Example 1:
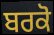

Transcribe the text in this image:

ਬਰਕੋ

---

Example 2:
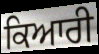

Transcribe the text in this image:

ਕਿਆਰੀ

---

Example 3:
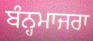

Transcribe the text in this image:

ਬੰਨ੍ਹਮਾਜਰਾ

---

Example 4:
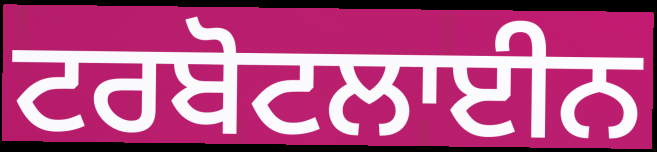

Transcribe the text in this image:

ਟਰਬੋਟਲਾਈਨ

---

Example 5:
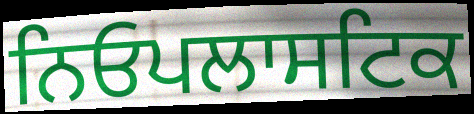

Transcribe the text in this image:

ਨਿਓਪਲਾਸਟਿਕ